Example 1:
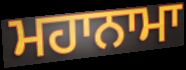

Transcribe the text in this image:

ਮਹਾਨਾਮਾ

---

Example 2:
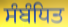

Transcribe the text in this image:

ਸੰਬੰਧਿਤ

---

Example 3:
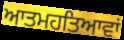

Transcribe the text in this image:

ਆਤਮਹਤਿਆਵਾਂ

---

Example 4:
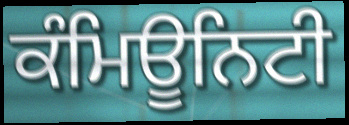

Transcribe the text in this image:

ਕੰਮਿਊਨਿਟੀ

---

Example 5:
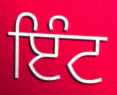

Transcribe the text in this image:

ਇੰਟ